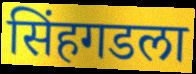
सिंहगडला